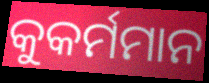
କୁକର୍ମମାନ